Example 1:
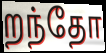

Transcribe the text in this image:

றந்தோ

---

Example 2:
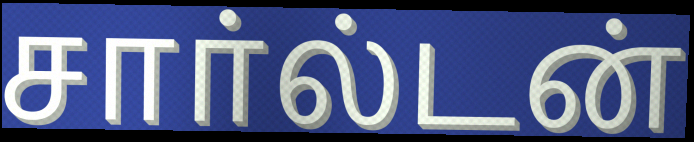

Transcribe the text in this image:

சார்ல்டன்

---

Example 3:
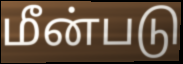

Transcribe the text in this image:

மீன்படு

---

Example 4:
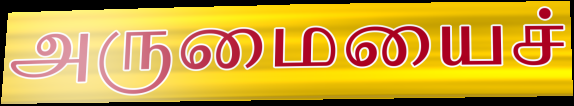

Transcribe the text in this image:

அருமையைச்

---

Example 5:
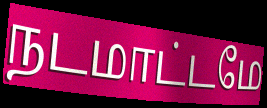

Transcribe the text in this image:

நடமாட்டமே